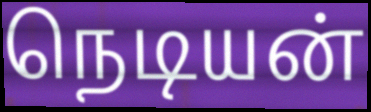
நெடியன்